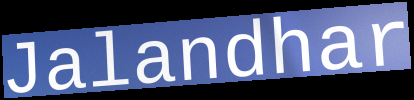
Jalandhar